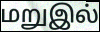
மறுஇல்